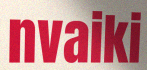
nvaiki